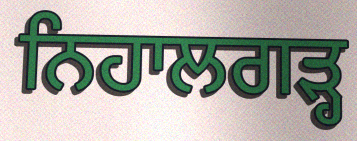
ਨਿਹਾਲਗੜ੍ਹ